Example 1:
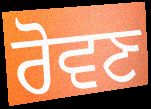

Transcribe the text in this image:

ਰੋਵਣ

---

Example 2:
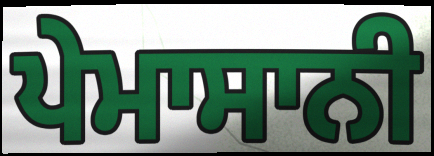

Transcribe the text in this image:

ਪੇਮਾਸਾਨੀ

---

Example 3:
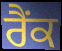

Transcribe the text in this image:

ਰੈੰਕ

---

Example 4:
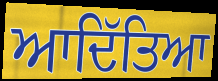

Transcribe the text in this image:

ਆਦਿੱਤਿਆ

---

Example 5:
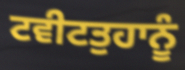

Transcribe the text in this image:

ਟਵੀਟਤੁਹਾਨੂੰ